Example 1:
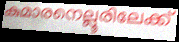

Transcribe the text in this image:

കുമാരനെല്ലൂരിലേക്ക്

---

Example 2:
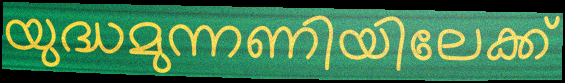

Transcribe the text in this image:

യുദ്ധമുന്നണിയിലേക്ക്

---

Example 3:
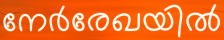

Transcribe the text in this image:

നേർരേഖയിൽ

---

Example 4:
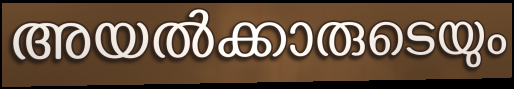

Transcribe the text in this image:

അയൽക്കാരുടെയും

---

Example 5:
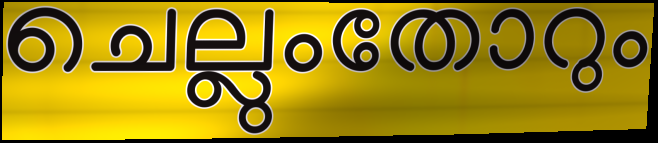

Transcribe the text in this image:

ചെല്ലുംതോറും